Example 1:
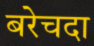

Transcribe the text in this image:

बरेचदा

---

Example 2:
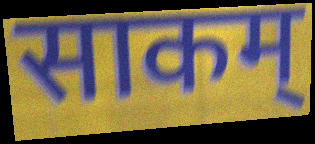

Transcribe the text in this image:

साकम्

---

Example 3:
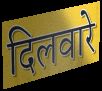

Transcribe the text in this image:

दिलवारे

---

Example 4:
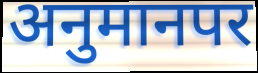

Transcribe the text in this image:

अनुमानपर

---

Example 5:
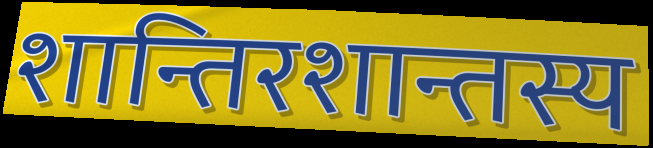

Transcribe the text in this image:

शान्तिरशान्तस्य